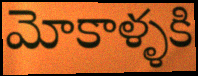
మోకాళ్ళకి